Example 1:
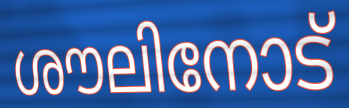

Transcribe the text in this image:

ശൗലിനോട്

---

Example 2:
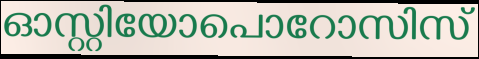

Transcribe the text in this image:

ഓസ്റ്റിയോപൊറോസിസ്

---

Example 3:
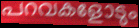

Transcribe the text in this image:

പറവകളോടും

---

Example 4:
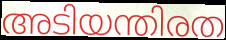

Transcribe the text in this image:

അടിയന്തിരത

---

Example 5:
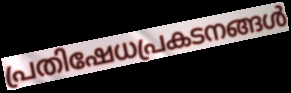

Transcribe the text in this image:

പ്രതിഷേധപ്രകടനങ്ങൾ